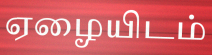
ஏழையிடம்